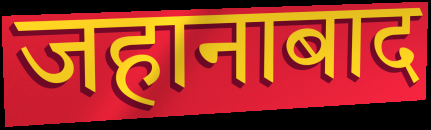
जहानाबाद